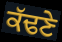
ਕੱਢਣੇ